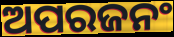
ଅପରଜନଂ